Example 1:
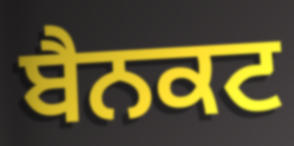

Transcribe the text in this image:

ਬੈਨਕਟ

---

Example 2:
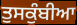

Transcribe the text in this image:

ਤੁਸਕੁੰਬੀਆ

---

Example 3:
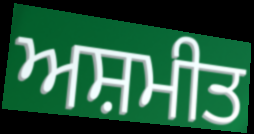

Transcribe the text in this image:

ਅਸ਼ਮੀਤ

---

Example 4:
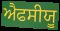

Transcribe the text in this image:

ਐਫਸੀਯੂ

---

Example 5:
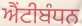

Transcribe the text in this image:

ਐਂਟੀਬੰਧਨ